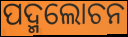
ପଦ୍ମଲୋଚନ